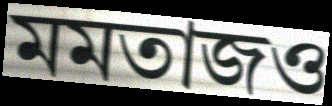
মমতাজও